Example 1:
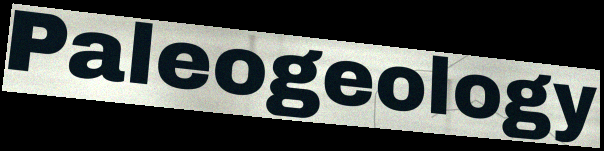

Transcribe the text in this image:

Paleogeology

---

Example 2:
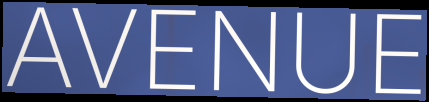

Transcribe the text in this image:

AVENUE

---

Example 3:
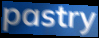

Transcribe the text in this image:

pastry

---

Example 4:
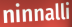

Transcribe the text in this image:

ninnalli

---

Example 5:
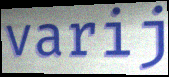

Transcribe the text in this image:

varij